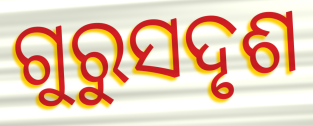
ଗୁରୁସଦୃଶ